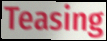
Teasing